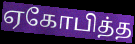
ஏகோபித்த